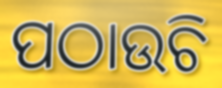
ପଠାଉଚି